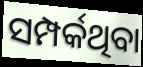
ସମ୍ପର୍କଥିବା